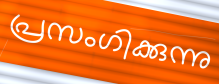
പ്രസംഗിക്കുന്നു